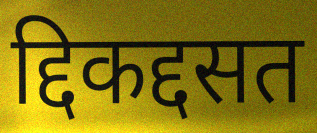
द्दिकद्दसत